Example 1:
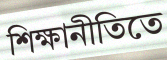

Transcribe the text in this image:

শিক্ষানীতিতে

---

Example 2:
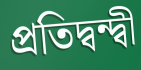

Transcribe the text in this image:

প্রতিদ্বন্দ্বী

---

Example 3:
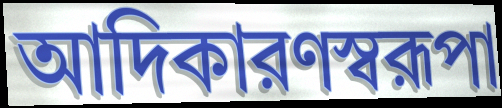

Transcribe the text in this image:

আদিকারণস্বরূপা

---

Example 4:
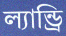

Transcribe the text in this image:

ল্যান্ড্রি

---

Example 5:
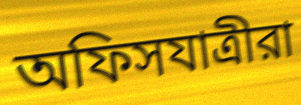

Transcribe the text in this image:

অফিসযাত্রীরা